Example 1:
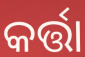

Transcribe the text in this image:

କର୍ତ୍ତା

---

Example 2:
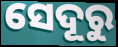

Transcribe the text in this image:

ସେଦୂରୁ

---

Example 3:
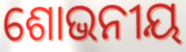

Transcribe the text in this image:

ଶୋଭନୀୟ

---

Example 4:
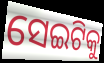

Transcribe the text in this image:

ସେଇଟିକୁ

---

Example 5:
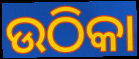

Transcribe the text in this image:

ଉଠିକା